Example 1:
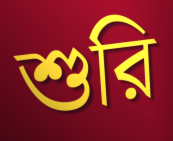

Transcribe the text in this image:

শুরি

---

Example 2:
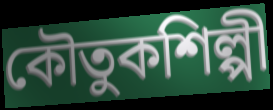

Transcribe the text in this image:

কৌতুকশিল্পী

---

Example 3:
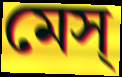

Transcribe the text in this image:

মেস্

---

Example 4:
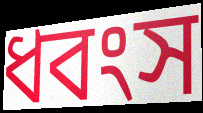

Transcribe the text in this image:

ধবংস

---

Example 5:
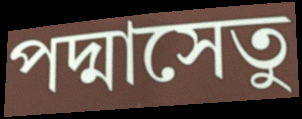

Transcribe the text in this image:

পদ্মাসেতু